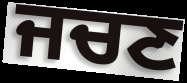
ਜਚਣ